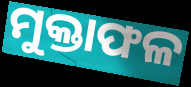
ମୁକ୍ତାଫଳ